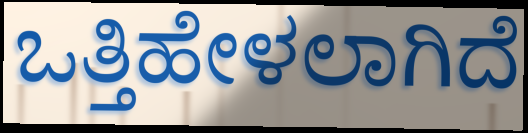
ಒತ್ತಿಹೇಳಲಾಗಿದೆ